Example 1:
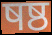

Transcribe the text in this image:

षष्ठ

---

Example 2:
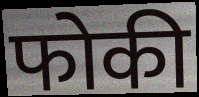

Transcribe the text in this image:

फोकी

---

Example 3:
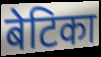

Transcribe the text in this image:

बेटिका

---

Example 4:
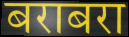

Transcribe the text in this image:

बराबरा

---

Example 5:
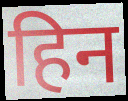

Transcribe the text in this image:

हिन